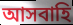
আসবাহি